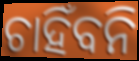
ଚାହିଁବନି